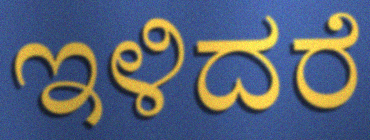
ಇಳಿದರೆ